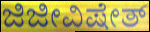
ಜಿಜೀವಿಷೇತ್